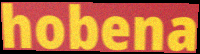
hobena